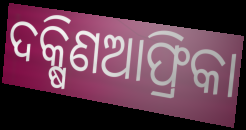
ଦକ୍ଷିଣଆଫ୍ରିକା